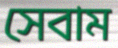
সেবাম